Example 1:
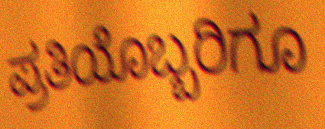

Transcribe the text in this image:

ಪ್ರತಿಯೊಬ್ಬರಿಗೂ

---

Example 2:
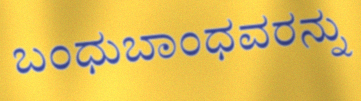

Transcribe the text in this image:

ಬಂಧುಬಾಂಧವರನ್ನು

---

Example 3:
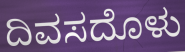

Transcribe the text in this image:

ದಿವಸದೊಳು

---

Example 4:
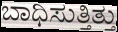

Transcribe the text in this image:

ಬಾಧಿಸುತ್ತಿತ್ತು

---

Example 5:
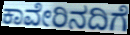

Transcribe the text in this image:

ಕಾವೇರಿನದಿಗೆ